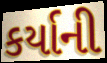
કર્યાની